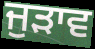
ਜੁੜਾਵ